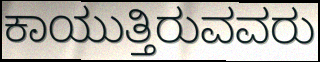
ಕಾಯುತ್ತಿರುವವರು